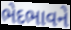
ભેદભાવને